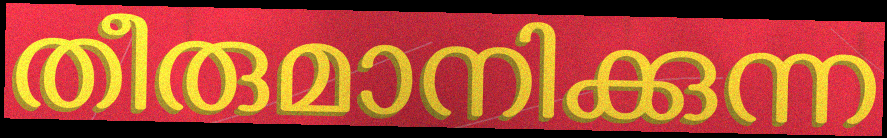
തീരുമാനിക്കുന്ന